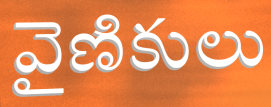
వైణికులు